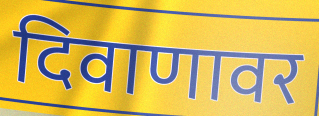
दिवाणावर